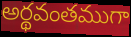
అర్థవంతముగా